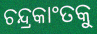
ଚନ୍ଦ୍ରକାଂତକୁ